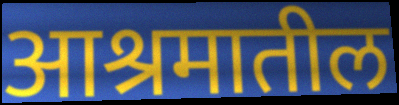
आश्रमातील